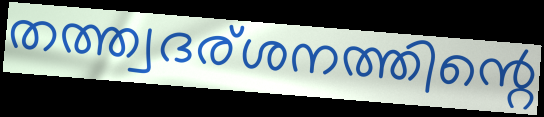
തത്ത്വദര്ശനത്തിന്റെ